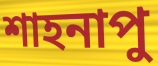
শাহনাপু